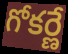
గోకర్ణే